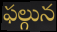
ఫల్గున